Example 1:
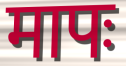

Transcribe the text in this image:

मापः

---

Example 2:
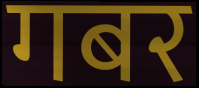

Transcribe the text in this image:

गबर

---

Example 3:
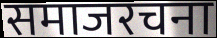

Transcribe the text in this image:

समाजरचना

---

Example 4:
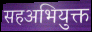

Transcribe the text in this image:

सहअभियुक्त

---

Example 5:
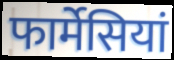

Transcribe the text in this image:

फार्मेसियां